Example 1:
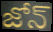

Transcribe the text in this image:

జోన్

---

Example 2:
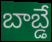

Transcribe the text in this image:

బాబ్డే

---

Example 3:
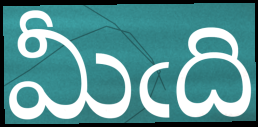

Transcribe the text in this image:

మీఁది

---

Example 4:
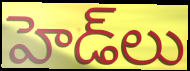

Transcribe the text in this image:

హెడ్‌లు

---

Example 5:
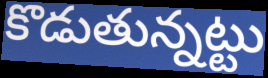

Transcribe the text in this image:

కొడుతున్నట్టు